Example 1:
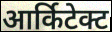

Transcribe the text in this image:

आर्किटेक्ट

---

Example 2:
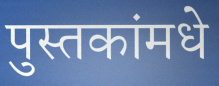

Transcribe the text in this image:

पुस्तकांमधे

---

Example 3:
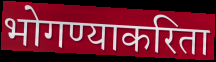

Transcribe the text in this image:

भोगण्याकरिता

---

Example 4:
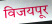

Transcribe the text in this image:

विजयपूर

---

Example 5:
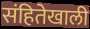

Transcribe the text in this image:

संहितेखाली